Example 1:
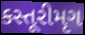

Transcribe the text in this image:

કસ્તૂરીમૃગ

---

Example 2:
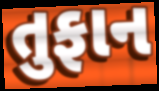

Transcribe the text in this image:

તુફાન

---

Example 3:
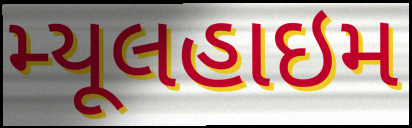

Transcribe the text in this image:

મ્યૂલહાઇમ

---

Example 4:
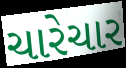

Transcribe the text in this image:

ચારેચાર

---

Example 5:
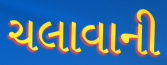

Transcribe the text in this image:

ચલાવાની